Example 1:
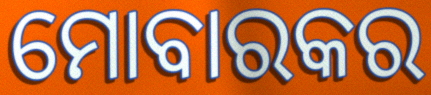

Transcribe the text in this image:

ମୋବାରକର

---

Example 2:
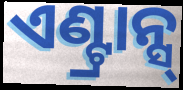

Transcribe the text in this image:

ଏଣ୍ଟ୍ରାନ୍ସ୍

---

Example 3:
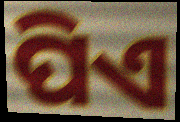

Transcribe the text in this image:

ପିଏ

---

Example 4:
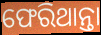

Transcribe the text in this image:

ଫେରିଥାନ୍ତା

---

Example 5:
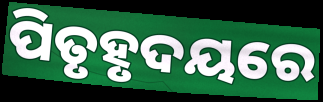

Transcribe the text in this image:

ପିତୃହୃଦୟରେ